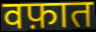
वफ़ात